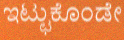
ಇಟ್ಟುಕೊಂಡೇ